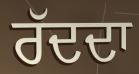
ਰੱਦਦਾ